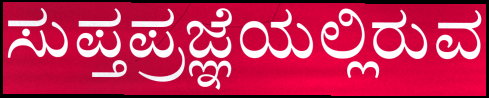
ಸುಪ್ತಪ್ರಜ್ಞೆಯಲ್ಲಿರುವ